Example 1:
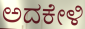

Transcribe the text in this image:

ಅದಕೇಳಿ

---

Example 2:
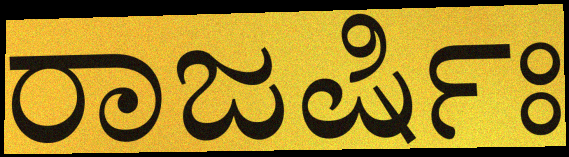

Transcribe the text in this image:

ರಾಜರ್ಷಿಃ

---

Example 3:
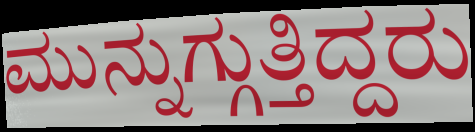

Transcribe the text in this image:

ಮುನ್ನುಗ್ಗುತ್ತಿದ್ದರು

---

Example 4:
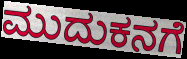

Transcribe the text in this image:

ಮುದುಕನಗೆ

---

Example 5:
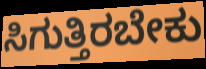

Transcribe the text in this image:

ಸಿಗುತ್ತಿರಬೇಕು